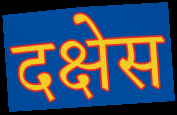
दक्षेस